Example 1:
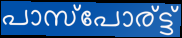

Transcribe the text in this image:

പാസ്പോര്ട്ട്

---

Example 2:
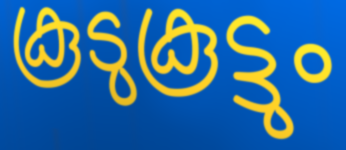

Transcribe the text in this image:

കൂടുകൂട്ടും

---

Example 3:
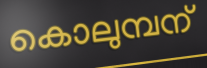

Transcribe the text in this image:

കൊലുമ്പന്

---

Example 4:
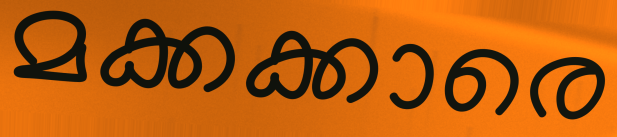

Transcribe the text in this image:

മക്കക്കാരെ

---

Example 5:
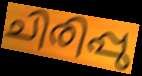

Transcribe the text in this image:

ചിരിപ്പു